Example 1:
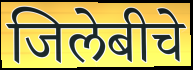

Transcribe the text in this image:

जिलेबीचे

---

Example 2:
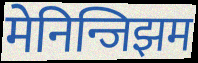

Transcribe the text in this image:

मेनिन्जिझम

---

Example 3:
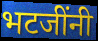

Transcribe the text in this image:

भटजींनी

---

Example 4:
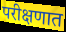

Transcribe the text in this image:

परीक्षणात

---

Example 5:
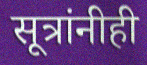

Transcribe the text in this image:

सूत्रांनीही